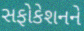
સફોકેશનને